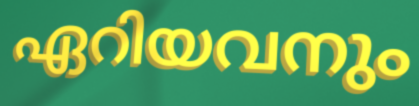
ഏറിയവനും